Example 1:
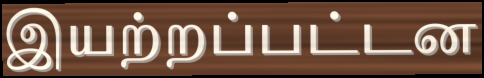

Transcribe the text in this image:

இயற்றப்பட்டன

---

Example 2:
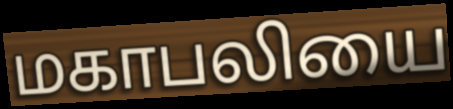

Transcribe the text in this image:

மகாபலியை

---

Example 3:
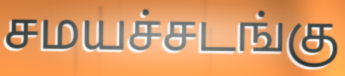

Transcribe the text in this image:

சமயச்சடங்கு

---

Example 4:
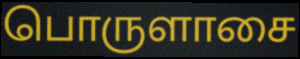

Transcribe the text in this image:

பொருளாசை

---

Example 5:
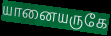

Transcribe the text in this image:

யானையருகே